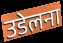
उडेलना